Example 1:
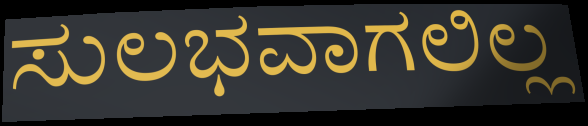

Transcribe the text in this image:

ಸುಲಭವಾಗಲಿಲ್ಲ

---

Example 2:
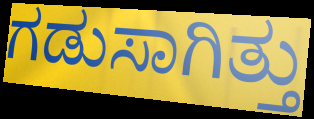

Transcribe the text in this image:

ಗಡುಸಾಗಿತ್ತು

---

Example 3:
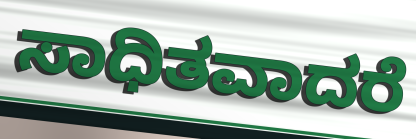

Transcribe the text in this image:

ಸಾಧಿತವಾದರೆ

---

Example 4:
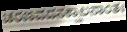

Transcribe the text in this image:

ಚರಣವದನಕ್ಷಾಲನಾಂತಃ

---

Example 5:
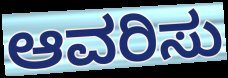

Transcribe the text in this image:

ಆವರಿಸು